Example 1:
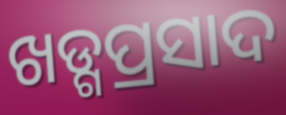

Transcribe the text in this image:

ଖଡ୍ଗପ୍ରସାଦ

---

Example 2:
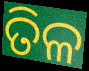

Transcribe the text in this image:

ତିଳ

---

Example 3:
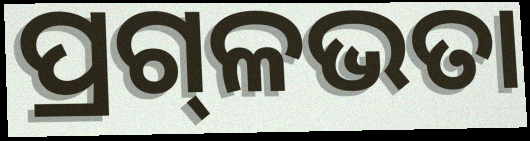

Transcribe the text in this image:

ପ୍ରଗ୍‍ଳଭତା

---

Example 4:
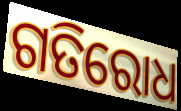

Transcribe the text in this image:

ଗତିରୋଧ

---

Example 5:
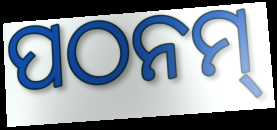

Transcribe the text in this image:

ପଠନମ୍